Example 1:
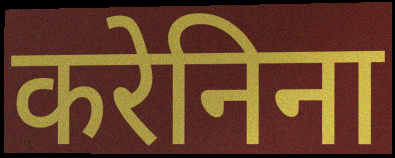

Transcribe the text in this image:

करेनिना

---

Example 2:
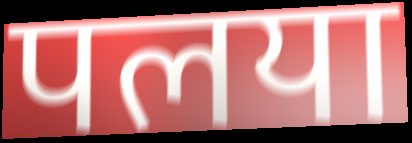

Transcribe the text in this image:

पलया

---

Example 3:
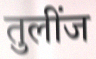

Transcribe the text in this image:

तुलींज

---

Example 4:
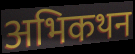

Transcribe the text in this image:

अभिकथन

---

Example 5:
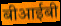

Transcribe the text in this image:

बीआईबी